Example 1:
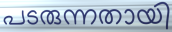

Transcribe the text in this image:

പടരുന്നതായി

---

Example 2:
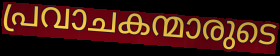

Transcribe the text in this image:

പ്രവാചകന്മാരുടെ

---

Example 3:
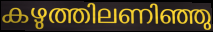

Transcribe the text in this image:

കഴുത്തിലണിഞ്ഞു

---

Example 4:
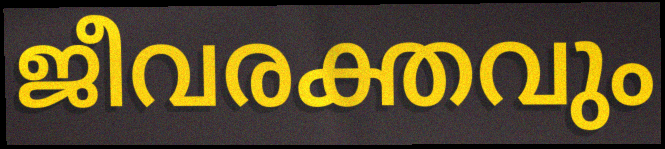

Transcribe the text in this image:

ജീവരക്തവും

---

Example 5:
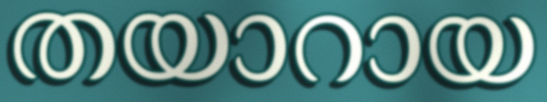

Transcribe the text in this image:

തയാറായ